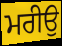
ਮਰੀਉ